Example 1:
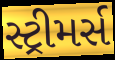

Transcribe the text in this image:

સ્ટ્રીમર્સ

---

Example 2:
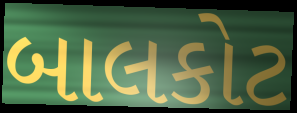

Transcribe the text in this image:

બાલકોટ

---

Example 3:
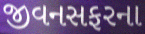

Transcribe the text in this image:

જીવનસફરના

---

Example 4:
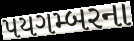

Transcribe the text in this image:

પયગમ્બરના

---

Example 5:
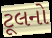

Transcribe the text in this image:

ટૂલનો